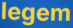
legem